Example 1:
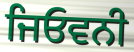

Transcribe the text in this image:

ਜਿਓਵਨੀ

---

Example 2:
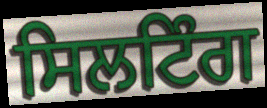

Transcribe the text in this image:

ਸਿਲਟਿੰਗ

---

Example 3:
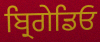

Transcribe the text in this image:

ਬ੍ਰਿਗੇਡਿਓ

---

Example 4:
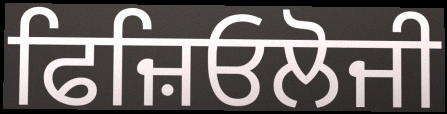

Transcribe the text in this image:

ਫਿਜ਼ਿਓਲੋਜੀ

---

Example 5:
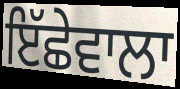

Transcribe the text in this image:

ਇੱਛੇਵਾਲਾ